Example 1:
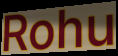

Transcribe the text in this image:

Rohu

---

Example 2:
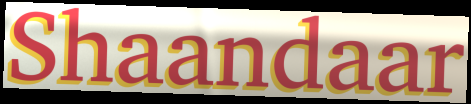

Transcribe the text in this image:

Shaandaar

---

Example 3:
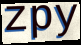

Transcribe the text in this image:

zpy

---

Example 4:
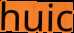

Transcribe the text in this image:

huic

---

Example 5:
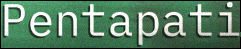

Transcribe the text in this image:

Pentapati